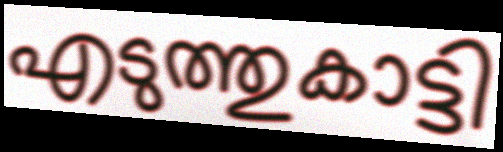
എടുത്തുകാട്ടി